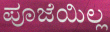
ಪೂಜೆಯಿಲ್ಲ